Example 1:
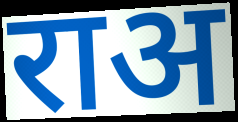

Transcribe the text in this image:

राअ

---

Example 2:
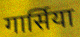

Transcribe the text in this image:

गार्सिया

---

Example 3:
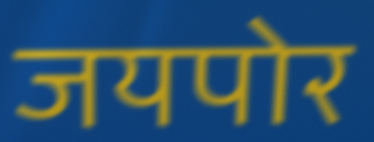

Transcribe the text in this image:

जयपोर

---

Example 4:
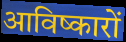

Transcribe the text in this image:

आविष्‍कारों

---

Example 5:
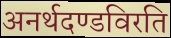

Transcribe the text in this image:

अनर्थदण्डविरति